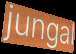
jungal